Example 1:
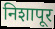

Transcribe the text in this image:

निशापूर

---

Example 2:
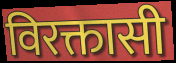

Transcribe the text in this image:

विरक्तासी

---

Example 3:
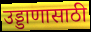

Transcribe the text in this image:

उड्डाणासाठी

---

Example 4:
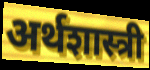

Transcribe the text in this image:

अर्थशास्त्री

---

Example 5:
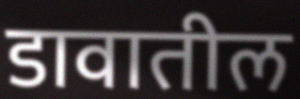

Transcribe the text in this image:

डावातील